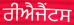
ਰੀਐਜੈਂਟਸ